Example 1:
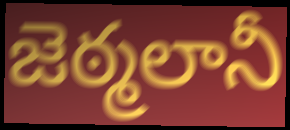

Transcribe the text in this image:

జెఠ్మలానీ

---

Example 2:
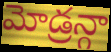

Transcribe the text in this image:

మోడ్రన్గా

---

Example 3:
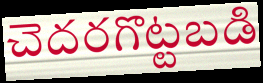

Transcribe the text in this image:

చెదరగొట్టబడి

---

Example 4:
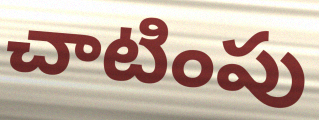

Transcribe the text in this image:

చాటింపు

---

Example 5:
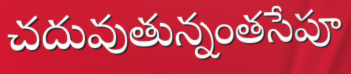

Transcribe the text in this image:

చదువుతున్నంతసేపూ